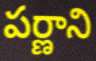
పర్ణాని